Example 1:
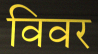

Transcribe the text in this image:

विवर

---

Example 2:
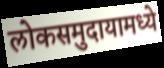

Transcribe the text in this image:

लोकसमुदायामध्ये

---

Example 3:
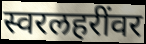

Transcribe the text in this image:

स्वरलहरींवर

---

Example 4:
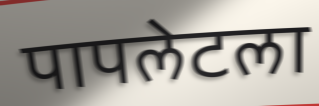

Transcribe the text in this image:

पापलेटला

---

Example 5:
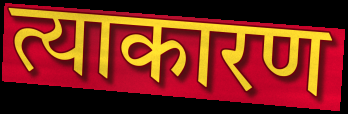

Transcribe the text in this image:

त्याकारण